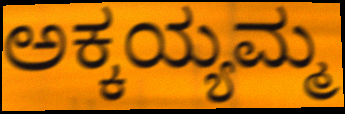
ಅಕ್ಕಯ್ಯಮ್ಮ